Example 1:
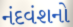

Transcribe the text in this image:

નંદવંશનો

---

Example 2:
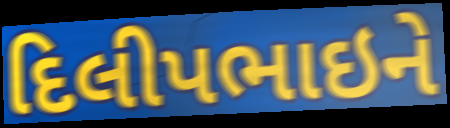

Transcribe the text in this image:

દિલીપભાઇને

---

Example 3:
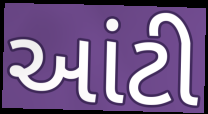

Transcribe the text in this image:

આંટી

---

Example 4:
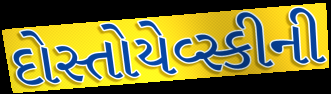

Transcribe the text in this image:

દોસ્તોયેવ્સ્કીની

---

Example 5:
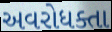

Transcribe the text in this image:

અવરોધક્તા